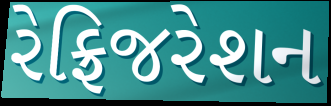
રેફ્રિજરેશન